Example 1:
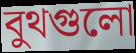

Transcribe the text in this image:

বুথগুলো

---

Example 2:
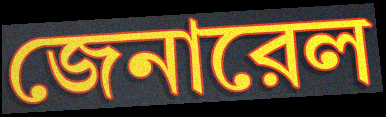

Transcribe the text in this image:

জেনারেল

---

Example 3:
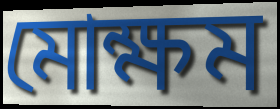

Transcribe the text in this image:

মোক্ষম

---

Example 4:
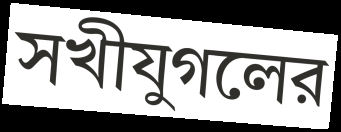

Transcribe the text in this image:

সখীযুগলের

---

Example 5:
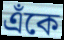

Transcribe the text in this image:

এঁকে